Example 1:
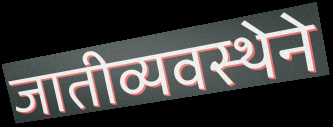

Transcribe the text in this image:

जातीव्यवस्थेने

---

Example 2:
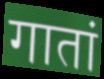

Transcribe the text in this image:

गातां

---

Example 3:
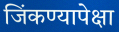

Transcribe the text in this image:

जिंकण्यापेक्षा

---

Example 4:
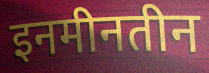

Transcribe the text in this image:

इनमीनतीन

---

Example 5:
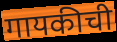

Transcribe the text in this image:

गायकीची